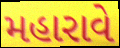
મહારાવે